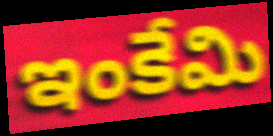
ఇంకేమి